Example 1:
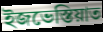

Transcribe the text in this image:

ইজভেস্তিয়াত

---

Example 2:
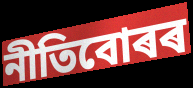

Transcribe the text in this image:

নীতিবোৰৰ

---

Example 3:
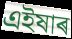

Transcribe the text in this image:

এইষাৰ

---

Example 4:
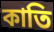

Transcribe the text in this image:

কাতি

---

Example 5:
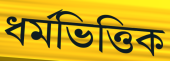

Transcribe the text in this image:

ধৰ্মভিত্তিক